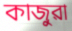
কাজুৱা